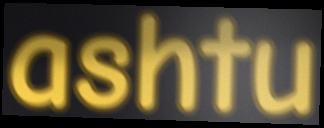
ashtu